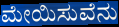
ಮೇಯಿಸುವೆನು